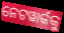
ନେଟୱାର୍କକୁ